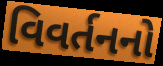
વિવર્તનનો